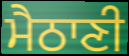
ਮੈਠਾਣੀ